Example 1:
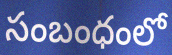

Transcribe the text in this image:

సంబంధంలో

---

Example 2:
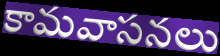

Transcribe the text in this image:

కామవాసనలు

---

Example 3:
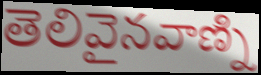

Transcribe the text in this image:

తెలివైనవాణ్ని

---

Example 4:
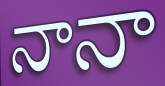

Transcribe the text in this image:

నానా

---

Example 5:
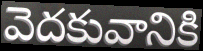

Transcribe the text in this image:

వెదకువానికి